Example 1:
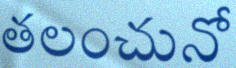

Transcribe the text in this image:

తలంచునో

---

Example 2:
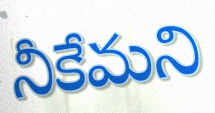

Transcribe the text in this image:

నీకేమని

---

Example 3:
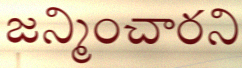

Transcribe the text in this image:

జన్మించారని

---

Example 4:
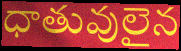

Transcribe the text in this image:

ధాతువులైన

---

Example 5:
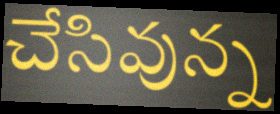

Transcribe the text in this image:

చేసివున్న